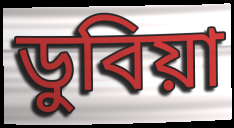
ডুবিয়া